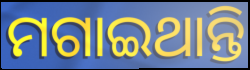
ମଗାଇଥାନ୍ତି